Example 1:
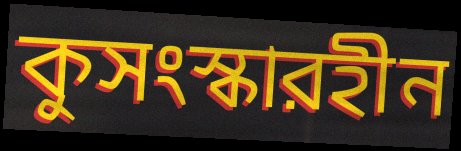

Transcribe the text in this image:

কুসংস্কারহীন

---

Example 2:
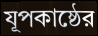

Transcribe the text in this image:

যূপকাষ্ঠের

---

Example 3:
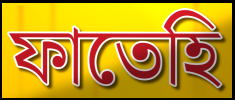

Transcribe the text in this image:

ফাতেহি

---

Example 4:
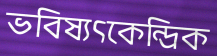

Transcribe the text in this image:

ভবিষ্যৎকেন্দ্রিক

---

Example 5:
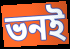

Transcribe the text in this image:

ভনই